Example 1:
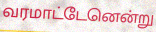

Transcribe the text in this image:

வரமாட்டேனென்று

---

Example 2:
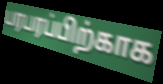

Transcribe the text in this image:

பரபரப்பிற்காக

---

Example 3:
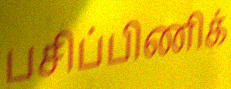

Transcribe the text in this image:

பசிப்பிணிக்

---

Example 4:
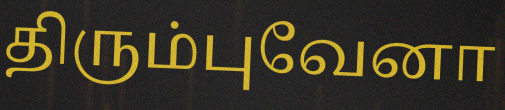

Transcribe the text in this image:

திரும்புவேனா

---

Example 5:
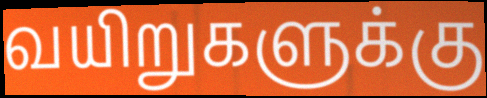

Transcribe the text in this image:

வயிறுகளுக்கு